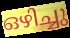
ഒഴിച്ചു